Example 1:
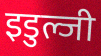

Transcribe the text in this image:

इडुल्जी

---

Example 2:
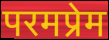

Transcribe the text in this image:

परमप्रेम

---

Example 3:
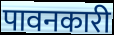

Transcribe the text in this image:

पावनकारी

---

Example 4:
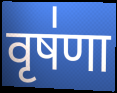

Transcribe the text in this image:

वृष॑णा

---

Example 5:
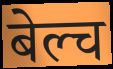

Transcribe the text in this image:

बेल्च